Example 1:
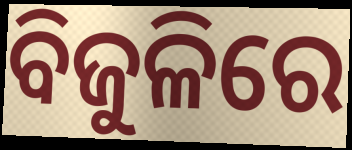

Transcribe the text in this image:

ବିଜୁଳିରେ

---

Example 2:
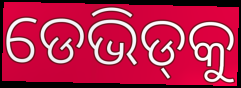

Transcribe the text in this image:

ଡେଭିଡ୍‍କୁ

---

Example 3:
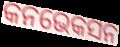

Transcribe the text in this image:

କନଭେକସନ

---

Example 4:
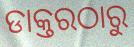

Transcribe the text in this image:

ଡାକ୍ତରଠାରୁ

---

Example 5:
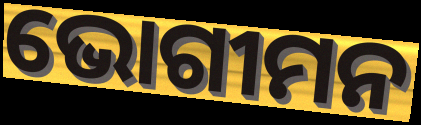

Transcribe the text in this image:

ଭୋଗୀମନ